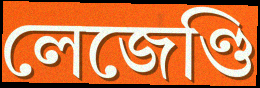
লেজেণ্ডি